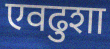
एवढुशा